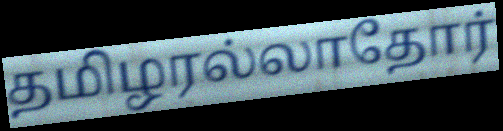
தமிழரல்லாதோர்